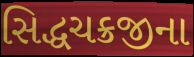
સિદ્ધચક્રજીના